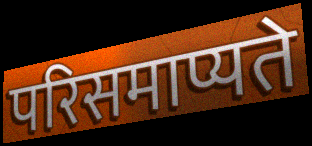
परिसमाप्यते